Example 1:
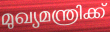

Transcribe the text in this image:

മുഖ്യമന്ത്രിക്ക്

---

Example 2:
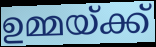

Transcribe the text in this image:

ഉമ്മയ്ക്ക്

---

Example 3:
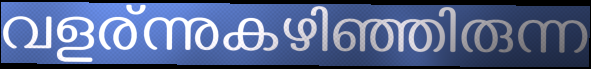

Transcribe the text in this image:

വളര്ന്നുകഴിഞ്ഞിരുന്ന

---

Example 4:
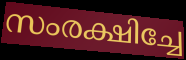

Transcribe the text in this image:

സംരക്ഷിച്ചേ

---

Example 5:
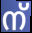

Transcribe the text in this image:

ന്